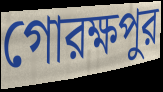
গোরক্ষপুর